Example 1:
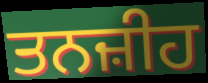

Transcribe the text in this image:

ਤਨਜ਼ੀਹ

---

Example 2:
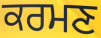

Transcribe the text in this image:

ਕਰਮਣ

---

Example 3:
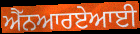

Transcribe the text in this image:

ਐੱਨਆਰਏਆਈ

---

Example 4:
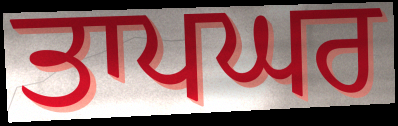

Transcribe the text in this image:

ਤਾਪਘਰ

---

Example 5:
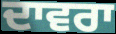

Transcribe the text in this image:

ਦਾਵਰਾ